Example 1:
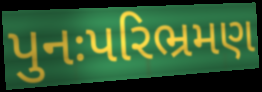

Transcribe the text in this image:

પુનઃપરિભ્રમણ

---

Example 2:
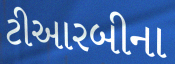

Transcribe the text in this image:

ટીઆરબીના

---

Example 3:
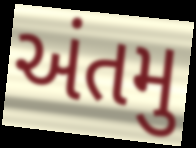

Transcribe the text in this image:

અંતમુ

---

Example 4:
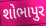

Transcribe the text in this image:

શોભાપુર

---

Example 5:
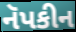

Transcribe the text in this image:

નૅપકીન